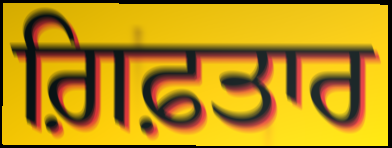
ਗ਼ਿਫ਼ਤਾਰ